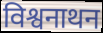
विश्वनाथन